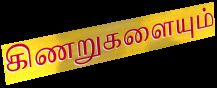
கிணறுகளையும்